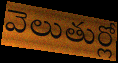
వెలుతుర్లో